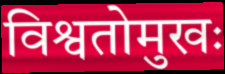
विश्वतोमुखः